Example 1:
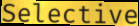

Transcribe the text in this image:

Selective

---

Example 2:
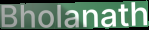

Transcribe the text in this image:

Bholanath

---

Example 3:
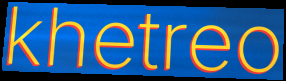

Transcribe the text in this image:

khetreo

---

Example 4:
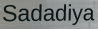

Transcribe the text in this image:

Sadadiya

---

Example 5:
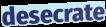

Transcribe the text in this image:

desecrate